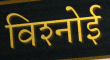
विश्नोई